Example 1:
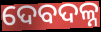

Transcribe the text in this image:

ଦେବଦଳ୍ନ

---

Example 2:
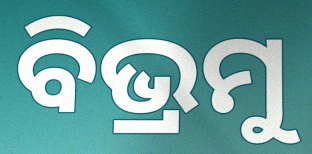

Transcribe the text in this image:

ବିଭ୍ରମୁ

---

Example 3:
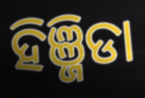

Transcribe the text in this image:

ହିଞ୍ଜିଡା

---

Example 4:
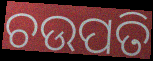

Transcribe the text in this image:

ଚଉପତି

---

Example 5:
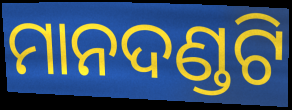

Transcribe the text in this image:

ମାନଦଣ୍ଡଟି